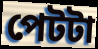
পেটটা